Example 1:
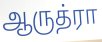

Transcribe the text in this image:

ஆருத்ரா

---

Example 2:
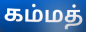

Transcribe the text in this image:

கம்மத்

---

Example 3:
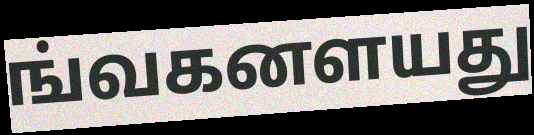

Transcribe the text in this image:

ங்வகனளயது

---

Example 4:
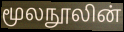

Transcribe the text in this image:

மூலநூலின்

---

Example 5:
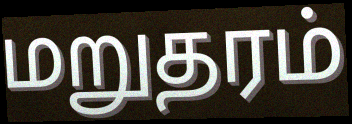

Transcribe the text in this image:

மறுதரம்